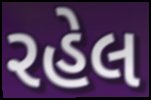
રહેલ